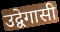
उद्वेगासी